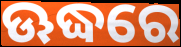
ଊଦ୍ଧରେ